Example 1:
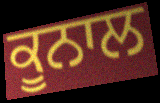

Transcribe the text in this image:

ਕੂਨਾਲ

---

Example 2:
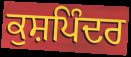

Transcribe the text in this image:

ਕੁਸ਼ਪਿੰਦਰ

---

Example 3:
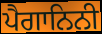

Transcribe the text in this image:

ਪੈਗਾਨਿਨੀ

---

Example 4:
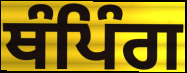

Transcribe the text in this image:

ਥੰਪਿੰਗ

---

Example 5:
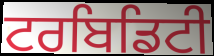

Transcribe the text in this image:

ਟਰਬਿਡਿਟੀ